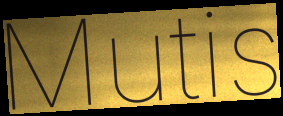
Mutis